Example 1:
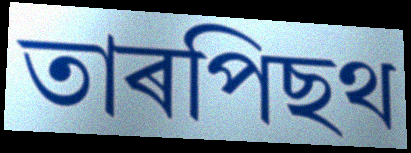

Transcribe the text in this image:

তাৰপিছথ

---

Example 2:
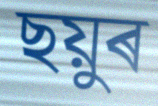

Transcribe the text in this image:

ছয়ুৰ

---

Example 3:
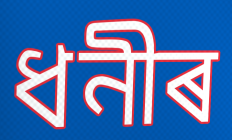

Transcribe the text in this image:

ধনীৰ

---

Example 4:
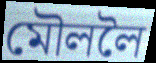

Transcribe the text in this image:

মৌললৈ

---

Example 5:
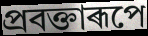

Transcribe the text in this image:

প্ৰবক্তাৰূপে